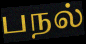
பநல்